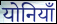
योनियाँ